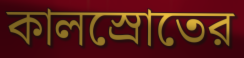
কালস্রোতের